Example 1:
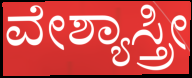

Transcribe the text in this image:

ವೇಶ್ಯಾಸ್ತ್ರೀ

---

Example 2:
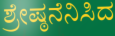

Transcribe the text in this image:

ಶ್ರೇಷ್ಠನೆನಿಸಿದ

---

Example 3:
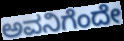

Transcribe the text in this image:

ಅವನಿಗೆಂದೇ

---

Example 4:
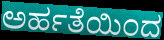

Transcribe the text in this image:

ಅರ್ಹತೆಯಿಂದ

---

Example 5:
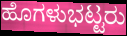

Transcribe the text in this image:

ಹೊಗಳುಭಟ್ಟರು